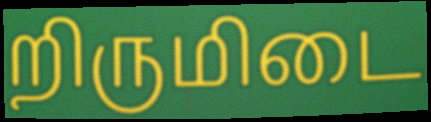
றிருமிடை